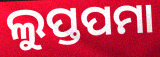
ଲୁପ୍ତପମା